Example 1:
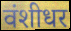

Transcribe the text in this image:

वंशीधर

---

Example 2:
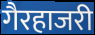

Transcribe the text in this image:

गैरहाजरी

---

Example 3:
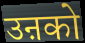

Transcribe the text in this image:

उऩको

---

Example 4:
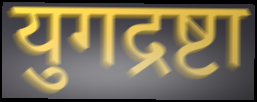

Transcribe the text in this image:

युगद्रष्टा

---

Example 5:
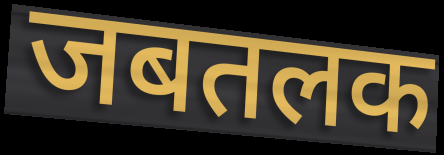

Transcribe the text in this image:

जबतलक